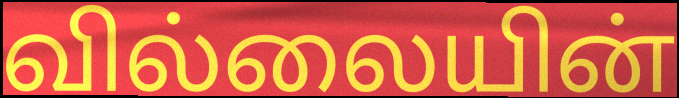
வில்லையின்